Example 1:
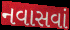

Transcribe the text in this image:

નવાસવાં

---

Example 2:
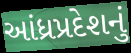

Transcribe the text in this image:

આંધ્રપ્રદેશનું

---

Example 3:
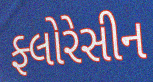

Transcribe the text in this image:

ફ્લોરેસીન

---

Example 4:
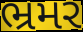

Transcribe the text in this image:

ભ્રમર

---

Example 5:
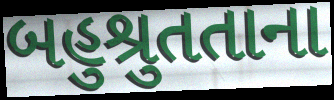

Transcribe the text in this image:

બહુશ્રુતતાના